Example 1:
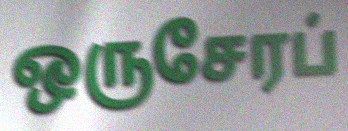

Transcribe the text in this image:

ஒருசேரப்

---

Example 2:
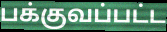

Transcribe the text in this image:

பக்குவப்பட்ட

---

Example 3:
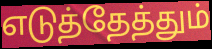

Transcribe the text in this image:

எடுத்தேத்தும்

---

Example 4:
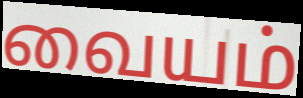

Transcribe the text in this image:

வையம்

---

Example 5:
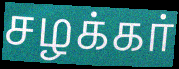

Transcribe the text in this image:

சழக்கர்